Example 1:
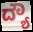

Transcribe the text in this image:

ದ್ಯೌ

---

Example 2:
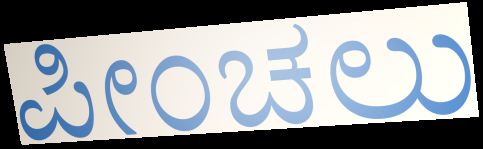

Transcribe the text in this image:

ಪೀಂಚಲು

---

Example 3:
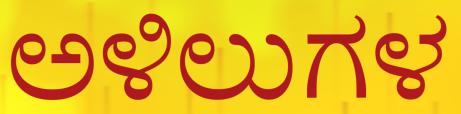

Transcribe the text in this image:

ಅಳಿಲುಗಳ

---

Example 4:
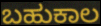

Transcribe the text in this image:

ಬಹುಕಾಲ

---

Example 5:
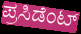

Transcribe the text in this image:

ಪ್ರಸಿಡೆಂಟ್